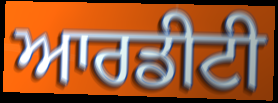
ਆਰਡੀਟੀ